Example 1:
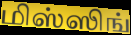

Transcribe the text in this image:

மிஸ்ஸிங்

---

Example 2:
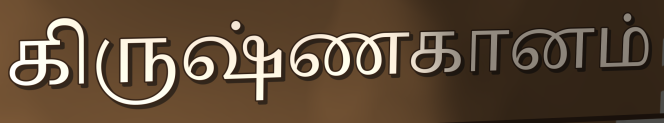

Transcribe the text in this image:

கிருஷ்ணகானம்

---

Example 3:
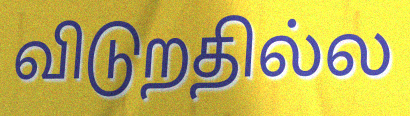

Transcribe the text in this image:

விடுறதில்ல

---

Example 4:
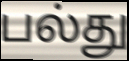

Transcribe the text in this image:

பல்து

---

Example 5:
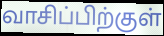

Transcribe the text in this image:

வாசிப்பிற்குள்